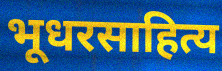
भूधरसाहित्य